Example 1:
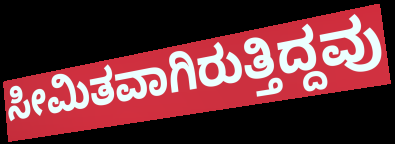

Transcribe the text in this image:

ಸೀಮಿತವಾಗಿರುತ್ತಿದ್ದವು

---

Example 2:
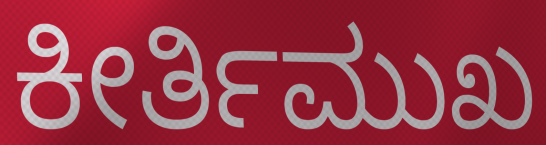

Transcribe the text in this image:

ಕೀರ್ತಿಮುಖ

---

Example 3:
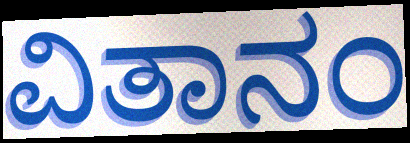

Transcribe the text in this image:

ವಿತಾನಂ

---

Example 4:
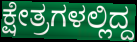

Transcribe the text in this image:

ಕ್ಷೇತ್ರಗಳಲ್ಲಿದ್ದ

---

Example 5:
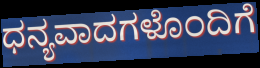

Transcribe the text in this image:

ಧನ್ಯವಾದಗಳೊಂದಿಗೆ